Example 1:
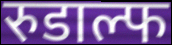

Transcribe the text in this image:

रुडाल्फ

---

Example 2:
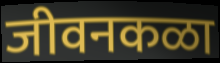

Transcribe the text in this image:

जीवनकळा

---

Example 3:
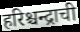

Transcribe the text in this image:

हरिश्चन्द्राची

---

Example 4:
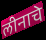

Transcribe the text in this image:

लीनाचे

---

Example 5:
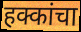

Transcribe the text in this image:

हक्कांचा